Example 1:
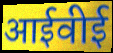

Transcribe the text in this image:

आईवीई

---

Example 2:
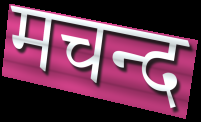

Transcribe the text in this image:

मचन्द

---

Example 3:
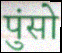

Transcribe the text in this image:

पुंसो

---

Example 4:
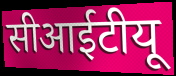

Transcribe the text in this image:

सीआईटीयू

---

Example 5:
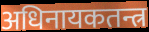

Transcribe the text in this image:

अधिनायकतन्त्र